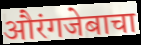
औरंगजेबाचा